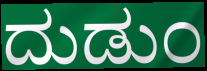
ದುಡುಂ